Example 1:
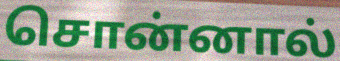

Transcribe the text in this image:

சொன்னால்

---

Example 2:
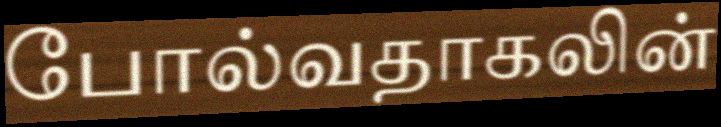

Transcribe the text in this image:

போல்வதாகலின்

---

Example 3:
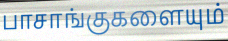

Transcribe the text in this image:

பாசாங்குகளையும்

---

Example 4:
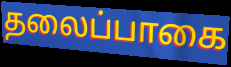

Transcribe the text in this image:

தலைப்பாகை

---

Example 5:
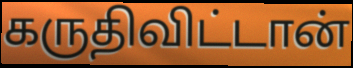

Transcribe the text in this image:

கருதிவிட்டான்